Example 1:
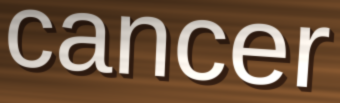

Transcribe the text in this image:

cancer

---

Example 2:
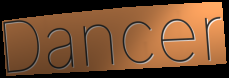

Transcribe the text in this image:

Dancer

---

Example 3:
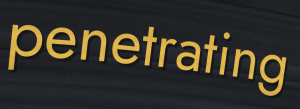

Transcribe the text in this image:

penetrating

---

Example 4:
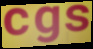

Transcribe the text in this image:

cgs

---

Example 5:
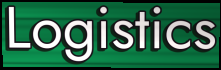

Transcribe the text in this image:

Logistics